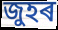
জুহৰ